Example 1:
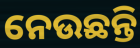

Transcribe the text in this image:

ନେଉଛନ୍ତି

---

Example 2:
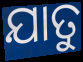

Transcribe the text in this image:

ଯାତୁ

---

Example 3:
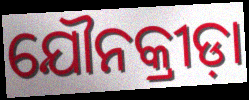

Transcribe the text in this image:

ଯୌନକ୍ରୀଡ଼ା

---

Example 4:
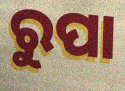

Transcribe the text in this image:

ରୁପା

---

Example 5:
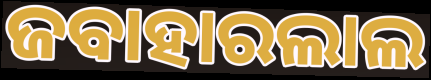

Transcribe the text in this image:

ଜବାହାରଲାଲ